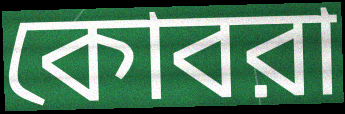
কোবরা